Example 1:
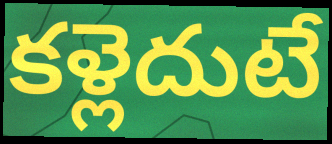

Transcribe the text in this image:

కళ్లెదుటే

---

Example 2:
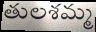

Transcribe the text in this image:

తులశమ్మ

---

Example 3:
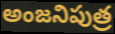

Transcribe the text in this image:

అంజనిపుత్ర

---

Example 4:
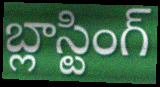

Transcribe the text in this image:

బ్లాస్టింగ్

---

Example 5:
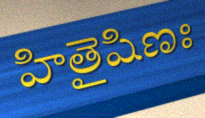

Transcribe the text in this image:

హితైషిణః